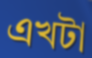
এখটা